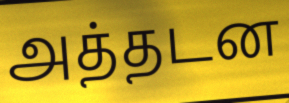
அத்தடன